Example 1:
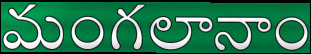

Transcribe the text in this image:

మంగలానాం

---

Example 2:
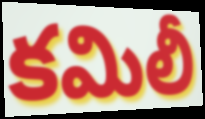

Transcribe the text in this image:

కమిలీ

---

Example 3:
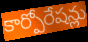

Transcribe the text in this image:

కార్పోరేషన్లు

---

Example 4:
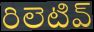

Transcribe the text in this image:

రిలెటివ్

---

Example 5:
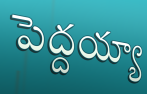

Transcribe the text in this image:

పెద్దయ్యా